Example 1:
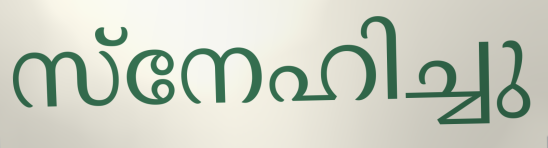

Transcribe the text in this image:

സ്നേഹിച്ചു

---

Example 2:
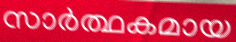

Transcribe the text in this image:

സാർത്ഥകമായ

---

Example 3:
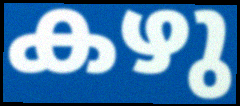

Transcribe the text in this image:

കഴു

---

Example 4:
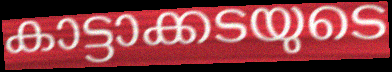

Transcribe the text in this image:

കാട്ടാക്കടയുടെ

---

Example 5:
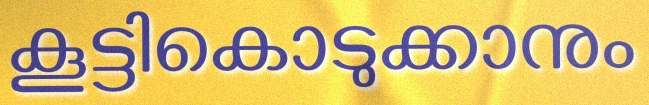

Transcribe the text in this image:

കൂട്ടികൊടുക്കാനും